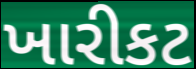
ખારીકટ